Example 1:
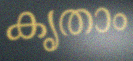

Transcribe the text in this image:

കൃതാം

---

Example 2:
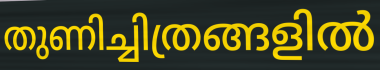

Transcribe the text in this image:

തുണിച്ചിത്രങ്ങളിൽ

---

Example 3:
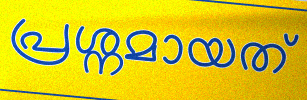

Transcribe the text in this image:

പ്രശ്നമായത്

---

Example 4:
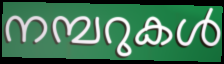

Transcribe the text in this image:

നമ്പറുകൾ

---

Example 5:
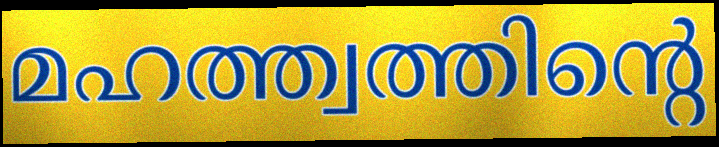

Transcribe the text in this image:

മഹത്ത്വത്തിന്റെ